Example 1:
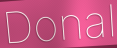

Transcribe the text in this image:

Donal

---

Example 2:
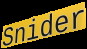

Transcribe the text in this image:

Snider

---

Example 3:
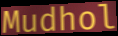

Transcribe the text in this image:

Mudhol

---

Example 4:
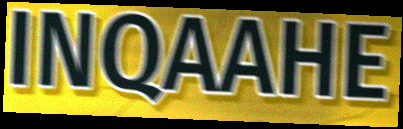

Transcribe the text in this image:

INQAAHE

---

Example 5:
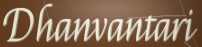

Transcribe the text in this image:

Dhanvantari